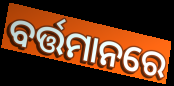
ବର୍ତ୍ତମାନରେ